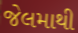
જેલમાથી